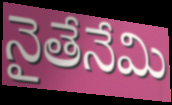
నైతేనేమి